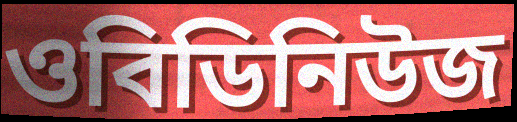
ওবিডিনিউজ